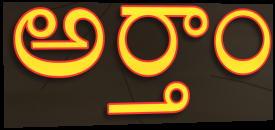
అర్తాం